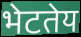
भेटतेय